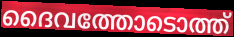
ദൈവത്തോടൊത്ത്